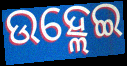
ଉହ୍ଲେଇ